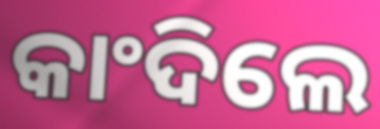
କାଂଦିଲେ